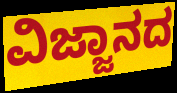
ವಿಜ್ಜಾನದ